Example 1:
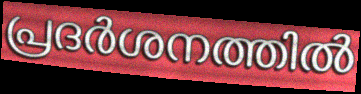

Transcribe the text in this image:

പ്രദർശനത്തിൽ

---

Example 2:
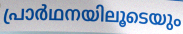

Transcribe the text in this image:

പ്രാർഥനയിലൂടെയും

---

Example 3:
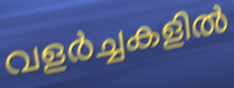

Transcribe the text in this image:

വളർച്ചകളിൽ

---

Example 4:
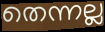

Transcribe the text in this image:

തെന്നല്ല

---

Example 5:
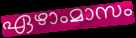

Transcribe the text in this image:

ഏഴാംമാസം